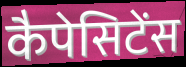
कैपेसिटेंस